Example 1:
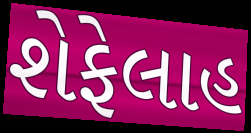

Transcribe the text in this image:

શેફેલાહ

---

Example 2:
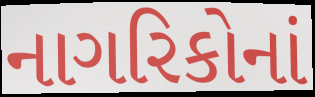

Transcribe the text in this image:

નાગરિકોનાં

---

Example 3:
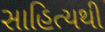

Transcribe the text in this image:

સાહિત્યથી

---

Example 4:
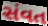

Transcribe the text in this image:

સંવત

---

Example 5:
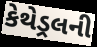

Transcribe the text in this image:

કેથેડ્રલની